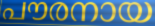
പൗരനായ